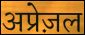
अप्रेज़ल